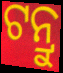
ଟନ୍ରୁ